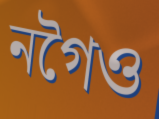
নগৈও